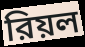
রিয়ল